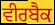
ਵੀਰਬੈਕ